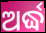
ଅର୍ଦ୍ଧ